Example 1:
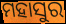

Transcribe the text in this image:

ମହାସୁର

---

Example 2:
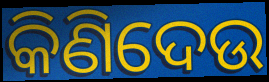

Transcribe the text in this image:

କିଣିଦେଉ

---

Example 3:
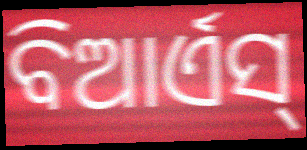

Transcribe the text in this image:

ବିଆର୍ଏସ୍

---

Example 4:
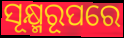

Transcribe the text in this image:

ସୂକ୍ଷ୍ମରୂପରେ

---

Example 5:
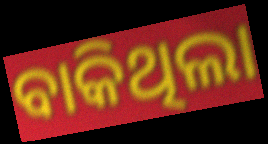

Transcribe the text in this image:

ବାକିଥିଲା